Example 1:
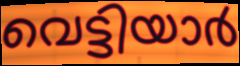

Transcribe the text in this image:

വെട്ടിയാർ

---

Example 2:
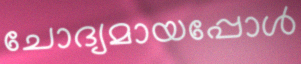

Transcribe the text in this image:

ചോദ്യമായപ്പോൾ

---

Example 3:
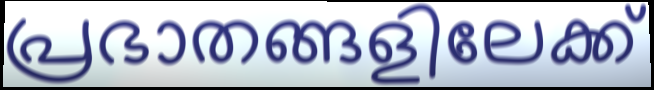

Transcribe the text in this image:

പ്രഭാതങ്ങളിലേക്ക്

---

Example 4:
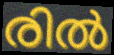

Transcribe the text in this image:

രിൽ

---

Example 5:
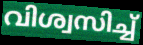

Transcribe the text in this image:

വിശ്വസിച്ച്